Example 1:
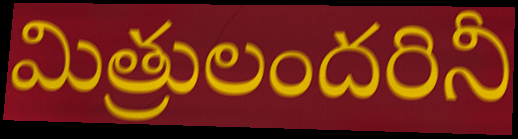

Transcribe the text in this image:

మిత్రులందరినీ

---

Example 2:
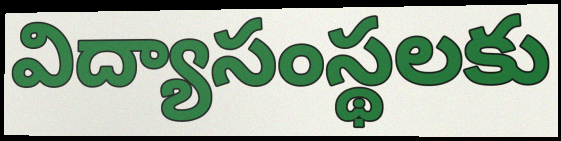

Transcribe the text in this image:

విద్యాసంస్థలకు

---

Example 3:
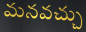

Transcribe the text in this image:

మనవచ్చు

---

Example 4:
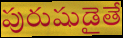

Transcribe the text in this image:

పురుషుడైతే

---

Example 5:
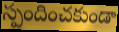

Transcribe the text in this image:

స్పందించకుండా